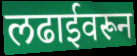
लढाईवरून